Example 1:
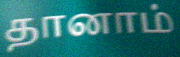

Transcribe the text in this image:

தானாம்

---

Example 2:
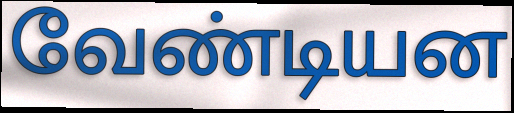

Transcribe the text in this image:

வேண்டியன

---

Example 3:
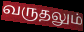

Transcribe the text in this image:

வருதலும்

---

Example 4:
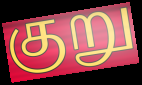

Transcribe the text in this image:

குறு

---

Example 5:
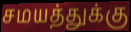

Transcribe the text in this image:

சமயத்துக்கு